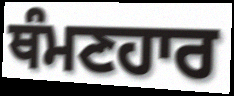
ਥੰਮਣਹਾਰ